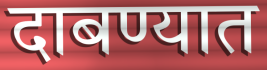
दाबण्यात